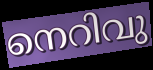
നെറിവു